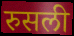
रुसली